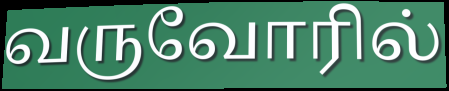
வருவோரில்